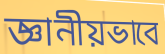
জ্ঞানীয়ভাবে